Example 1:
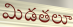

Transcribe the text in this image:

మిడతలూ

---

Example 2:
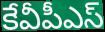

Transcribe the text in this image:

కేవీపీఎస్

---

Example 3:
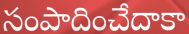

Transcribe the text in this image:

సంపాదించేదాకా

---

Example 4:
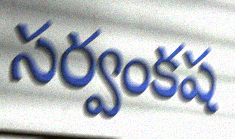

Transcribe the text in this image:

సర్వంకష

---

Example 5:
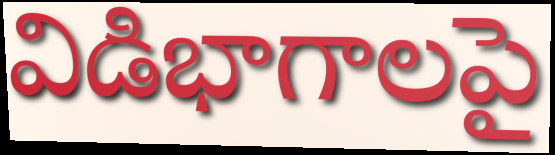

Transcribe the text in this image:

విడిభాగాలపై